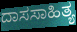
ದಾಸಸಾಹಿತ್ಯ